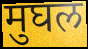
मुघल